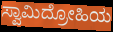
ಸ್ವಾಮಿದ್ರೋಹಿಯ